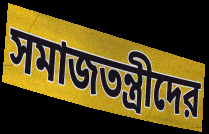
সমাজতন্ত্রীদের